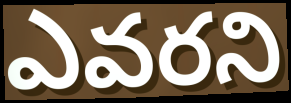
ఎవరని